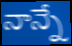
నాన్నే